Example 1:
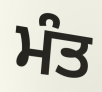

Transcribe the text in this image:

ਮੰਤ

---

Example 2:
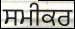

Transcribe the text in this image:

ਸਮੀਕਰ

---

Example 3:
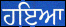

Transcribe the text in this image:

ਹਇਆ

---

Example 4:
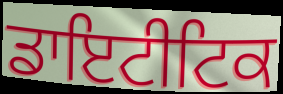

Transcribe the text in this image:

ਡਾਇਟੀਟਿਕ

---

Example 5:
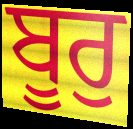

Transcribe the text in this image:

ਬੂਰੁ